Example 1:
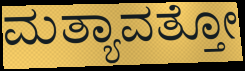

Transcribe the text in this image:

ಮತ್ಯಾವತ್ತೋ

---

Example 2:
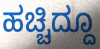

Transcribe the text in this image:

ಹಚ್ಚಿದ್ದೂ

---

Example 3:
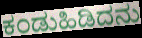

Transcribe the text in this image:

ಕಂಡುಹಿಡಿದನು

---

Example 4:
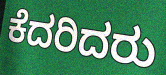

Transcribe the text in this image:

ಕೆದರಿದರು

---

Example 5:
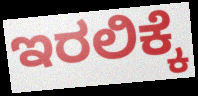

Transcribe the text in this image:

ಇರಲಿಕ್ಕೆ